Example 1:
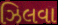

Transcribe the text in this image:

ઝિલવા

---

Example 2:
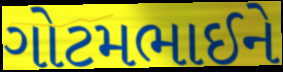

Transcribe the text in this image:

ગોટમભાઈને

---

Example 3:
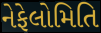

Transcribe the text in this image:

નેફેલોમિતિ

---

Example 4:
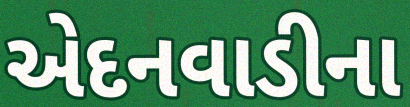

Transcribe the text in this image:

એદનવાડીના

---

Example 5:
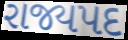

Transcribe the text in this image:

રાજ્યપદ